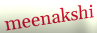
meenakshi